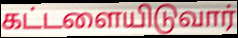
கட்டளையிடுவார்